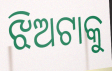
ଝିଅଟାକୁ